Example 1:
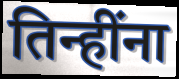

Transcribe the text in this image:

तिन्हींना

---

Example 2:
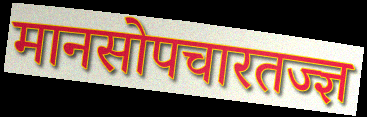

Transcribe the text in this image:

मानसोपचारतज्ज्ञ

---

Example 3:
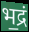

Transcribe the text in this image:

भ॒द्रं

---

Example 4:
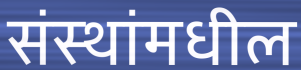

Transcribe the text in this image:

संस्थांमधील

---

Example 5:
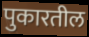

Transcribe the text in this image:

पुकारतील